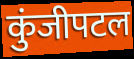
कुंजीपटल